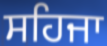
ਸਹਿਜਾ